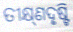
ତୀକ୍ଷ୍‌ଣଦୃଷ୍ଟି